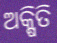
ଅକ୍ଷିତି